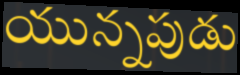
యున్నపుడు